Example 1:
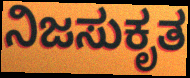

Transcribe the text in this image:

ನಿಜಸುಕೃತ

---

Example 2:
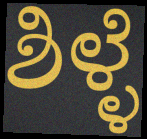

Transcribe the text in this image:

ಶಿಳ್ಳೆ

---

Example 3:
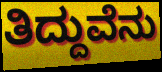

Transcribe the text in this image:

ತಿದ್ದುವೆನು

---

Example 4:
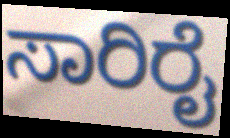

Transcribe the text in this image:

ಸಾರಿರೈ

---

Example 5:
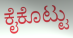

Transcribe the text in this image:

ಕೈಕೊಟ್ಟು